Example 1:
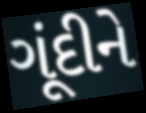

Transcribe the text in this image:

ગૂંદીને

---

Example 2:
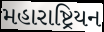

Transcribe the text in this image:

મહારાષ્ટ્રિયન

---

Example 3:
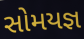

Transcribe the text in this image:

સોમયજ્ઞ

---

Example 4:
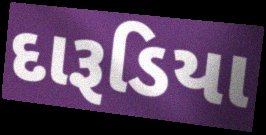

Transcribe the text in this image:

દારૂડિયા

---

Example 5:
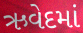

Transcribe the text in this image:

ઋવેદમાં